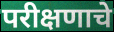
परीक्षणाचे